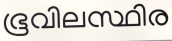
ഭൂവിലസ്ഥിര